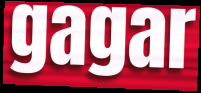
gagar